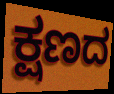
ಕ್ಷಣದ